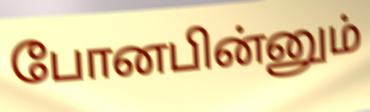
போனபின்னும்